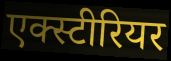
एक्स्टीरियर